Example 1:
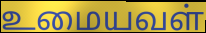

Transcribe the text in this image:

உமையவள்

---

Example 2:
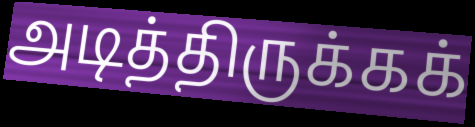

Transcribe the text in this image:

அடித்திருக்கக்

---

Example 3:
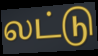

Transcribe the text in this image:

லட்டு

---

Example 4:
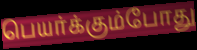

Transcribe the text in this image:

பெயர்க்கும்போது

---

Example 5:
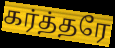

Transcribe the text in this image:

கர்த்தரே